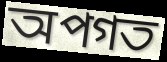
অপগত